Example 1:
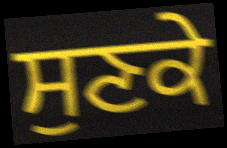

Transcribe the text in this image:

ਸੁਣਕੇ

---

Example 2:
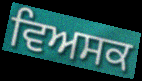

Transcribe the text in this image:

ਵਿਅਸਕ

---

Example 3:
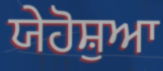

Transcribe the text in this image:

ਯੇਹੋਸ਼ੁਆ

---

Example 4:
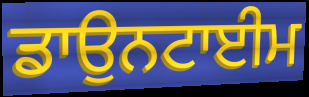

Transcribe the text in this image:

ਡਾਉਨਟਾਈਮ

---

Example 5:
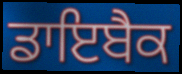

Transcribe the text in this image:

ਡਾਇਬੈਕ